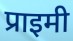
प्राइमी